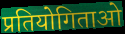
प्रतियोगिताओ